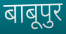
बाबूपुर